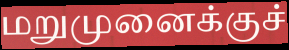
மறுமுனைக்குச்